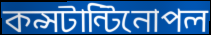
কন্সটান্টিনোপল